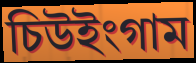
চিউইংগাম